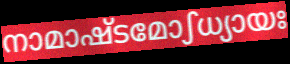
നാമാഷ്ടമോഽധ്യായഃ